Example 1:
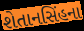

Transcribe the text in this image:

શેતાનસિંહના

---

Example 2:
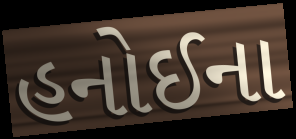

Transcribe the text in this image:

હનોઈના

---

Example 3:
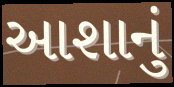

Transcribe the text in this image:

આશાનું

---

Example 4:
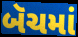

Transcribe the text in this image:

બૅચમાં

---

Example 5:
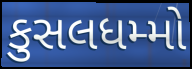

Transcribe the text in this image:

કુસલધમ્મો